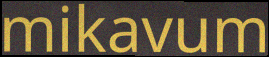
mikavum